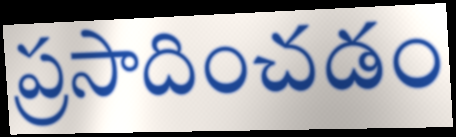
ప్రసాదించడం